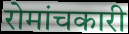
रोमांचकारी